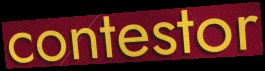
contestor